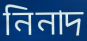
নিনাদ